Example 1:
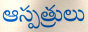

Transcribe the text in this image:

ఆస్పత్రులు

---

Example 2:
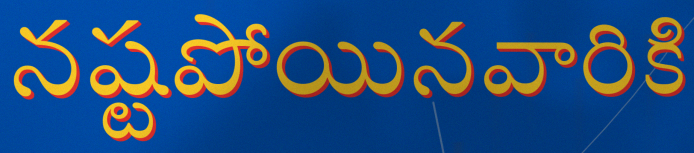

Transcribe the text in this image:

నష్టపోయినవారికి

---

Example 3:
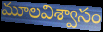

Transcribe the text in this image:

మూలవిశ్వాసం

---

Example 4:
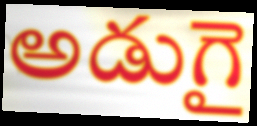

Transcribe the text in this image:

అడుగై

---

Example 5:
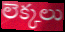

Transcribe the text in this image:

లెక్కలు